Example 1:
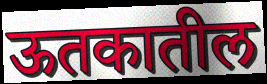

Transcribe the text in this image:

ऊतकातील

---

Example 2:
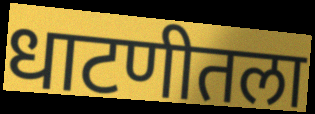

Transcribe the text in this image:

धाटणीतला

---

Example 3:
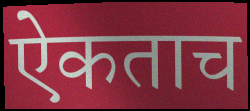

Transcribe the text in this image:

ऐकताच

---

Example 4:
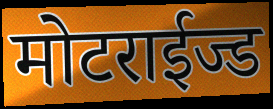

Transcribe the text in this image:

मोटराईज्ड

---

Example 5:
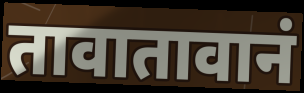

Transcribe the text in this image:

तावातावानं